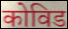
कोविड